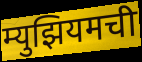
म्युझियमची